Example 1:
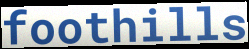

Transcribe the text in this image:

foothills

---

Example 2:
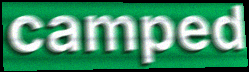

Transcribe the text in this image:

camped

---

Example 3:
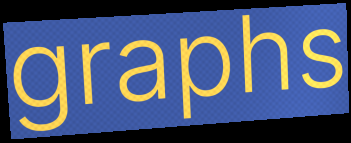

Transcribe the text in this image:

graphs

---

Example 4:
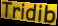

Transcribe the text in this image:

Tridib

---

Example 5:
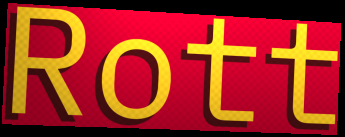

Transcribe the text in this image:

Rott